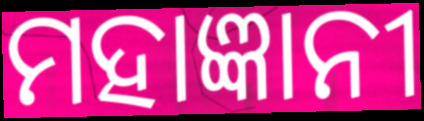
ମହାଜ୍ଞାନୀ